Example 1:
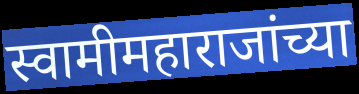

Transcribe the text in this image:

स्वामीमहाराजांच्या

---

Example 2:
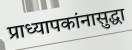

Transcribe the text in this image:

प्राध्यापकांनासुद्धा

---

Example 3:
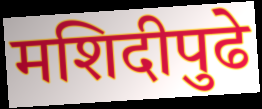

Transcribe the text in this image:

मशिदीपुढे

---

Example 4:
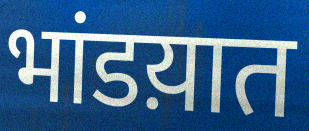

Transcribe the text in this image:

भांडय़ात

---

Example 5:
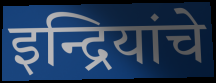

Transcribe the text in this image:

इन्द्रियांचे